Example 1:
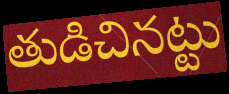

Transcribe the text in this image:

తుడిచినట్టు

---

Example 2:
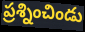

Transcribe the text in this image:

ప్రశ్నించిండు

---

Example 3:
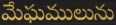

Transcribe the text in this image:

మేఘములును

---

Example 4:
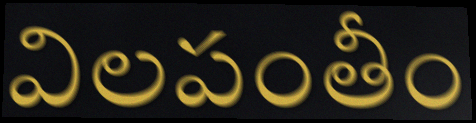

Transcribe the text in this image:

విలపంతీం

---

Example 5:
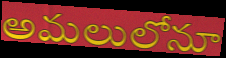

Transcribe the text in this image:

అమలులోనూ